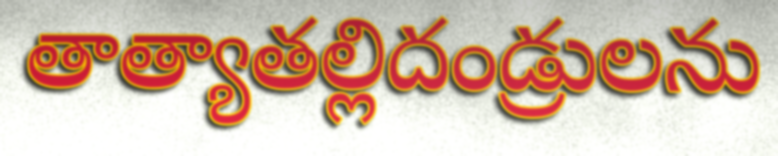
తాత్యాతల్లిదండ్రులను